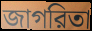
জাগরিতা